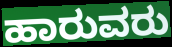
ಹಾರುವರು